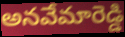
అనవేమారెడ్డి